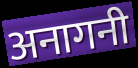
अनागनी